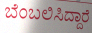
ಬೆಂಬಲಿಸಿದ್ದಾರೆ